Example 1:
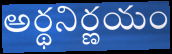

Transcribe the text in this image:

అర్థనిర్ణయం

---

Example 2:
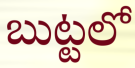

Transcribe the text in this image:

బుట్టలో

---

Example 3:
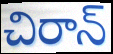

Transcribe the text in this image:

చిరాన్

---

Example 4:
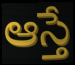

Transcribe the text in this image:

ఆస్తే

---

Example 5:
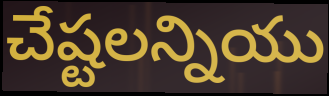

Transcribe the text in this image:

చేష్టలన్నియు